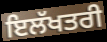
ਇਲੱਖਤਰੀ